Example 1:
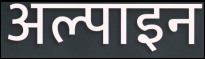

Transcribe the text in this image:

अल्पाइन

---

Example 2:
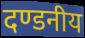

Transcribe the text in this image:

दण्डनीय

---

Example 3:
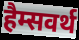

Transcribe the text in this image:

हैम्सवर्थ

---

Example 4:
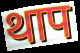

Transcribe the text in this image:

थाप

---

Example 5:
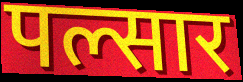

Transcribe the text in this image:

पल्सार